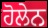
ਹੋਲੇਨ